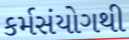
કર્મસંયોગથી